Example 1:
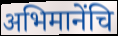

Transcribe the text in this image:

अभिमानेंचि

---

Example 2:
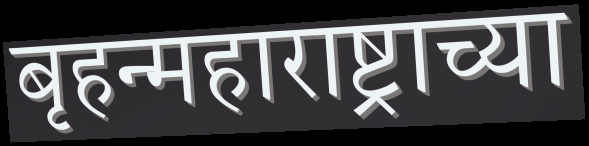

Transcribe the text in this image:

बृहन्महाराष्ट्राच्या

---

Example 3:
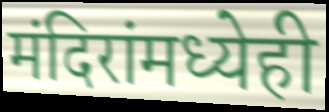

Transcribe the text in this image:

मंदिरांमध्येही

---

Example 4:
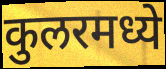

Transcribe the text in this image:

कुलरमध्ये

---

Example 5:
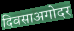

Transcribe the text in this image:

दिवसाअगोदर